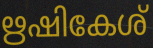
ഋഷികേശ്